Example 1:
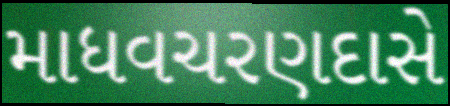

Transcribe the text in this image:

માધવચરણદાસે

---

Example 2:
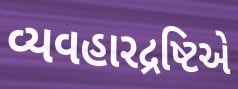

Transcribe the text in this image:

વ્યવહારદ્રષ્ટિએ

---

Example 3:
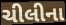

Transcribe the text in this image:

ચીલીના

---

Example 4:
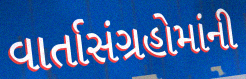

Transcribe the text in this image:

વાર્તાસંગ્રહોમાંની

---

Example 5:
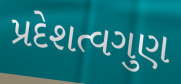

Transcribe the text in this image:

પ્રદેશત્વગુણ